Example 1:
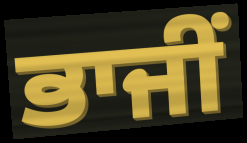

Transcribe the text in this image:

ਭਾਜੀਂ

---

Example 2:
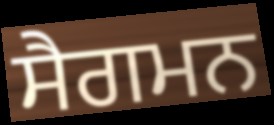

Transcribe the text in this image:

ਸੈਗਮਨ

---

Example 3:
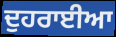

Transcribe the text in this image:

ਦੁਹਰਾਈਆ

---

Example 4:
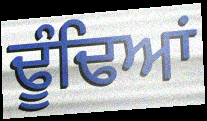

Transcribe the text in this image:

ਢੂੰਢਿਆਂ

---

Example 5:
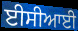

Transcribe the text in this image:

ਈਸੀਆਈ